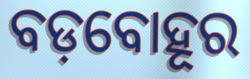
ବଡ଼ବୋହୂର